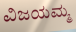
ವಿಜಯಮ್ಮ